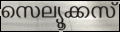
സെല്യൂക്കസ്